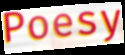
Poesy